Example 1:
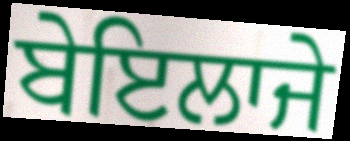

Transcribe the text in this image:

ਬੇਇਲਾਜੇ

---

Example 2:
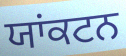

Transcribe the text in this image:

ਯਾਂਕਟਨ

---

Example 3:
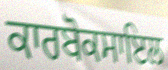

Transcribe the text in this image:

ਕਾਰਬੋਕਸਾਇਲ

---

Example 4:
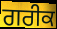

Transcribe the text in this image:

ਗਰੀਕ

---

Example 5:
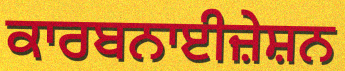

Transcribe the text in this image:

ਕਾਰਬਨਾਈਜ਼ੇਸ਼ਨ